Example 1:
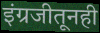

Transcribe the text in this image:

इंग्रजीतूनही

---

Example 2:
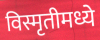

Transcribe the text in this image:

विस्मृतीमध्ये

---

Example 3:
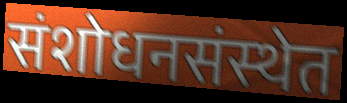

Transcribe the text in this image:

संशोधनसंस्थेत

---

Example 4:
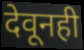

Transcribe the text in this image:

देवूनही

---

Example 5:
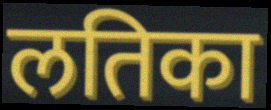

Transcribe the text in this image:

लतिका